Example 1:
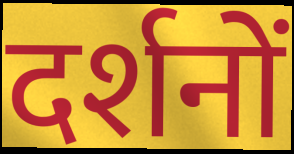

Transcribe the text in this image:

दर्शनों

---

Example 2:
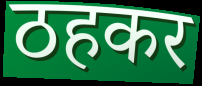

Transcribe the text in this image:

ठहकर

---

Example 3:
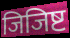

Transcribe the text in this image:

जिजिष्ट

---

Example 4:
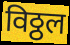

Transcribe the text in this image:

विठ्ठल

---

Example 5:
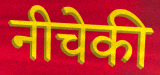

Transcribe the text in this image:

नीचेकी